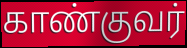
காண்குவர்